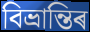
বিভ্ৰান্তিৰ